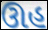
ઊહ